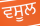
ਵਸੂਲ